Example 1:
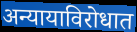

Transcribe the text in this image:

अन्यायाविरोधात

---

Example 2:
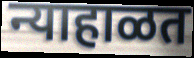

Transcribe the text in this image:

न्याहाळत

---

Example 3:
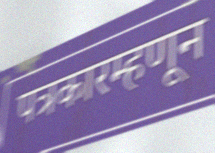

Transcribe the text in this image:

पत्रकारम्हणून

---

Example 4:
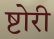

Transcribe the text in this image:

ष्टोरी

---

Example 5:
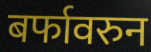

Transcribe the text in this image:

बर्फावरुन